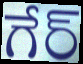
గేర్